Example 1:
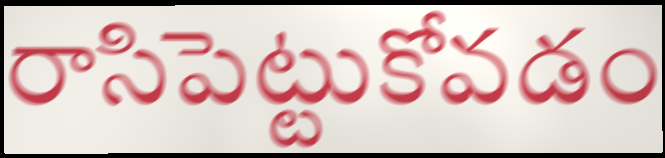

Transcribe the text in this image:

రాసిపెట్టుకోవడం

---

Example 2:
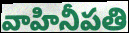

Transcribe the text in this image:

వాహినీపతి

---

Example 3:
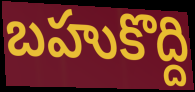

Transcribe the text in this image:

బహుకొద్ది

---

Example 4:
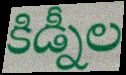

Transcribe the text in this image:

కిడ్నీల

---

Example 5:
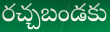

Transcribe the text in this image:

రచ్చబండకు